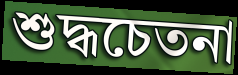
শুদ্ধচেতনা